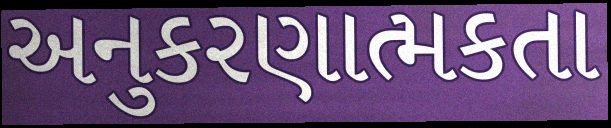
અનુકરણાત્મકતા